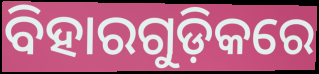
ବିହାରଗୁଡ଼ିକରେ